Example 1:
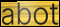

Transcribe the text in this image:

abot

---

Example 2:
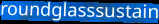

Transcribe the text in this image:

roundglasssustain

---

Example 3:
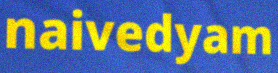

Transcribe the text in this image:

naivedyam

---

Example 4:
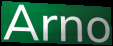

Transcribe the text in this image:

Arno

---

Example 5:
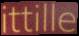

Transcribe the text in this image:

ittille